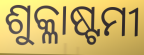
ଶୁକ୍ଳାଷ୍ଟମୀ